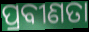
ପ୍ରବୀଣତା